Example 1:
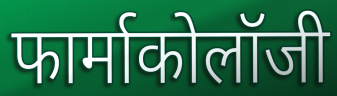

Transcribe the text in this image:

फार्माकोलॉजी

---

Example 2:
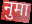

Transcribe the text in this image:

नुमा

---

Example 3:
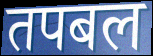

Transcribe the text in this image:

तपबल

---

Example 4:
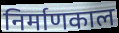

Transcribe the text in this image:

निर्माणकाल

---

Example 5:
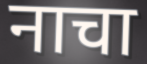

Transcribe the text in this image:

नाचा